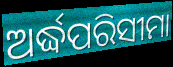
ଅର୍ଦ୍ଧପରିସୀମା